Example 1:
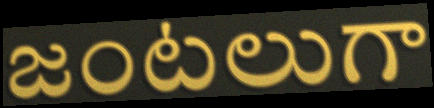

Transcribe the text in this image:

జంటలుగా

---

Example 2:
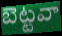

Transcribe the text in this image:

బెట్టవా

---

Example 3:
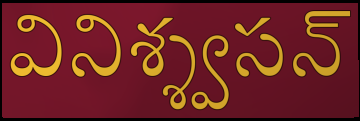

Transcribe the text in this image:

వినిశ్శ్వసన్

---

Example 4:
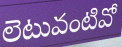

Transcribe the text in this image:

లెటువంటివో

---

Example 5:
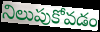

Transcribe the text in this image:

నిలుపుకోవడం